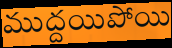
ముద్దయిపోయి